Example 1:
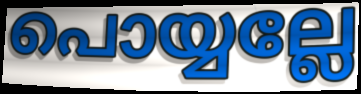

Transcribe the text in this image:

പൊയ്യല്ലേ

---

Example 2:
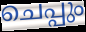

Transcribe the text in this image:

ചെപ്പും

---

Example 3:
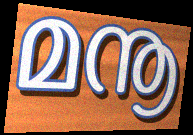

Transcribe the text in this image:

മനൂ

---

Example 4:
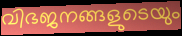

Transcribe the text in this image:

വിഭജനങ്ങളുടെയും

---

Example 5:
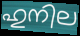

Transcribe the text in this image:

ഹുനില